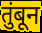
तुंबून